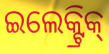
ଇଲେକ୍ଟ୍ରିକ୍